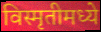
विस्मृतीमध्ये